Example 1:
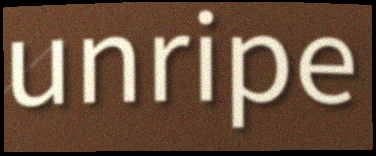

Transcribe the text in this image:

unripe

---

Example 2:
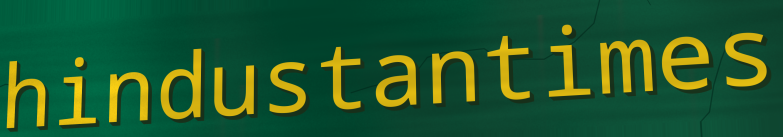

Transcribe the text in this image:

hindustantimes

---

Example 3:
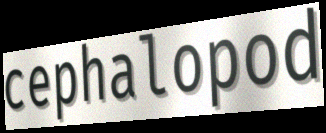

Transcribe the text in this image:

cephalopod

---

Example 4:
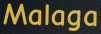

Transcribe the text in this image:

Malaga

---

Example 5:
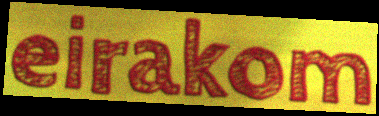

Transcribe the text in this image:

eirakom